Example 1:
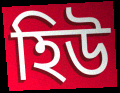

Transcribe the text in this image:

হিউ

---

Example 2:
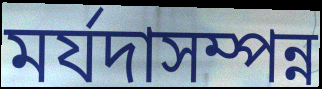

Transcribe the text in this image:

মৰ্যদাসম্পন্ন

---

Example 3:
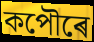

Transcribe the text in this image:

কপৌৰে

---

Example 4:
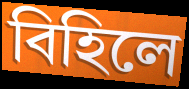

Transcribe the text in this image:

বিহিলে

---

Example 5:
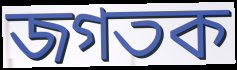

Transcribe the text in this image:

জগতক